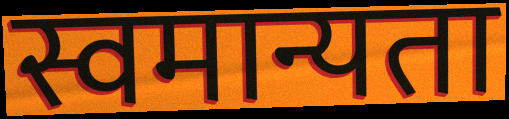
स्वमान्यता